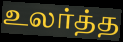
உலர்த்த